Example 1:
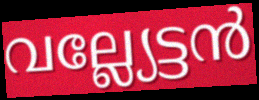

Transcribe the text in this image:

വല്ല്യേട്ടൻ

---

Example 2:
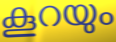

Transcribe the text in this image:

കൂറയും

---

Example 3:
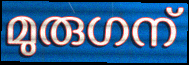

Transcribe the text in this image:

മുരുഗന്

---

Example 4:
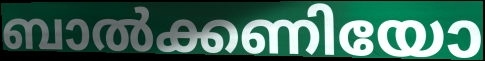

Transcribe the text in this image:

ബാൽക്കണിയോ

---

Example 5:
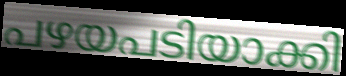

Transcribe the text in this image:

പഴയപടിയാക്കി